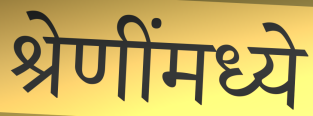
श्रेणींमध्ये